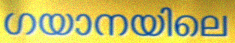
ഗയാനയിലെ